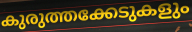
കുരുത്തക്കേടുകളും